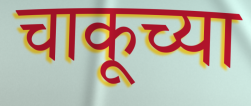
चाकूच्या